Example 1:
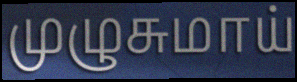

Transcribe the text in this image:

முழுசுமாய்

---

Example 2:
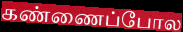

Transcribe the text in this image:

கண்ணைப்போல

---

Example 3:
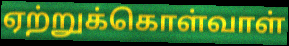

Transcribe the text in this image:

ஏற்றுக்கொள்வாள்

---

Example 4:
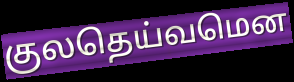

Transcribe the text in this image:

குலதெய்வமென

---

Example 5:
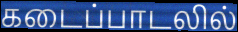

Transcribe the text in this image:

கடைப்பாடலில்